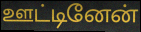
ஊட்டினேன்